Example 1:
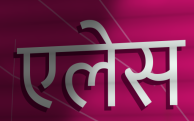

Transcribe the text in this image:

एलेस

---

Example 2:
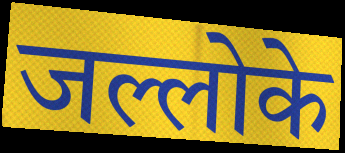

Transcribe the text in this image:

जल्लोके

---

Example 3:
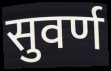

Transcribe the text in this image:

सुवर्ण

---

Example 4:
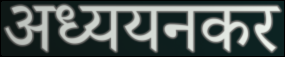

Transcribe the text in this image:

अध्ययनकर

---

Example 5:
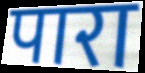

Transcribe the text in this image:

पारा